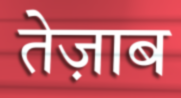
तेज़ाब